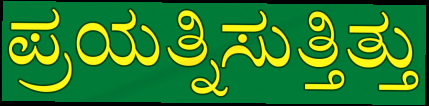
ಪ್ರಯತ್ನಿಸುತ್ತಿತ್ತು